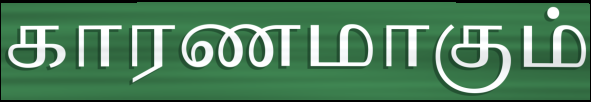
காரணமாகும்